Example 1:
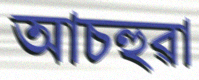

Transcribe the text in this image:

আচহুৱা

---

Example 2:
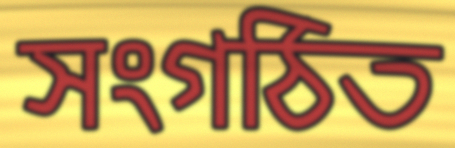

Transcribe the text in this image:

সংগঠিত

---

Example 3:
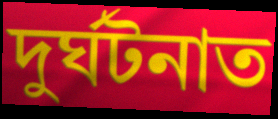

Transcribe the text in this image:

দুৰ্ঘটনাত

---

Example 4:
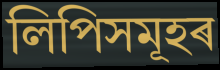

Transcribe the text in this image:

লিপিসমূহৰ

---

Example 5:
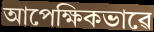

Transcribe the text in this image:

আপেক্ষিকভাৱে